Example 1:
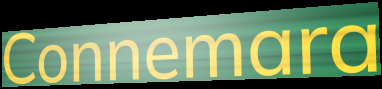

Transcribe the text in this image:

Connemara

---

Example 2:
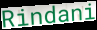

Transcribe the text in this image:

Rindani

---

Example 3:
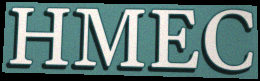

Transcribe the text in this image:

HMEC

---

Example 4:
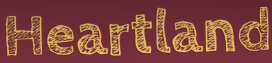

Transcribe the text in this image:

Heartland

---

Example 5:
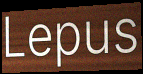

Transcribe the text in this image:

Lepus